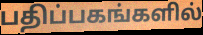
பதிப்பகங்களில்